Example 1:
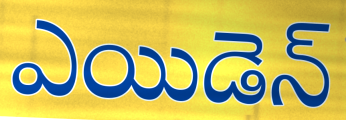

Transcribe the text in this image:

ఎయిడెన్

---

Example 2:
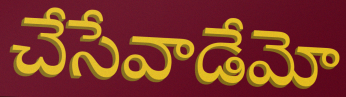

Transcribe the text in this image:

చేసేవాడేమో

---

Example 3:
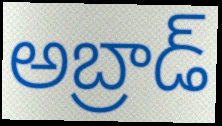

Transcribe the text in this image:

అబ్రాడ్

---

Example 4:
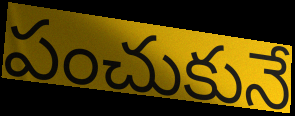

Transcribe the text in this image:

పంచుకునే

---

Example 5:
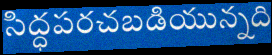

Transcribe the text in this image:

సిద్ధపరచబడియున్నది